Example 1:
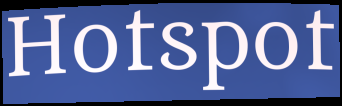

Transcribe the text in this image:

Hotspot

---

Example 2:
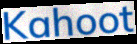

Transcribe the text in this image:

Kahoot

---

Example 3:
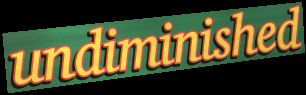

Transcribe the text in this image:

undiminished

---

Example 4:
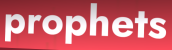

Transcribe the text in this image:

prophets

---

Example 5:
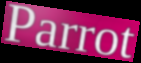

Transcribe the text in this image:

Parrot